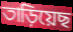
তাড়িয়েছ